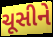
ચૂસીને